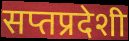
सप्तप्रदेशी